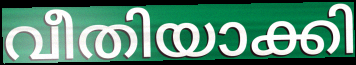
വീതിയാക്കി